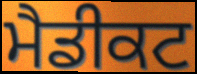
ਮੈਡੀਕਟ